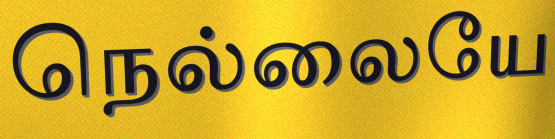
நெல்லையே